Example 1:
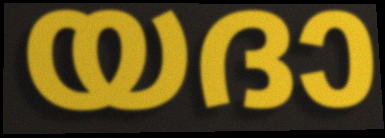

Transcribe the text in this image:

യദാ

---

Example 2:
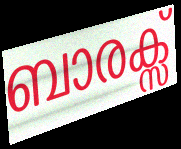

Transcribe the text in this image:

ബാരക്സ്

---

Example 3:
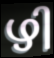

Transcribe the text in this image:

ഴി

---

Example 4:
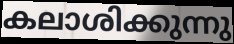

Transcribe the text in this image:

കലാശിക്കുന്നു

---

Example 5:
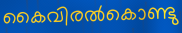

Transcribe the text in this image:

കൈവിരൽകൊണ്ടു